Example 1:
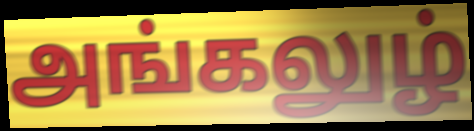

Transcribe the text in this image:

அங்கலுழ்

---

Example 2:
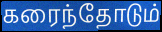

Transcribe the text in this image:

கரைந்தோடும்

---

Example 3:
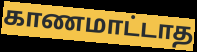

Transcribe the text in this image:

காணமாட்டாத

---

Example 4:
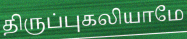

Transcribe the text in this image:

திருப்புகலியாமே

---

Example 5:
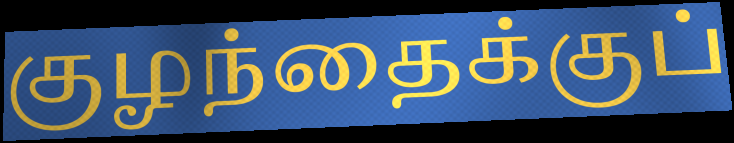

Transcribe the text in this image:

குழந்தைக்குப்